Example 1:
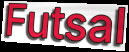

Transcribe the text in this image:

Futsal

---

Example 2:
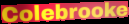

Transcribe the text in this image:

Colebrooke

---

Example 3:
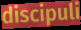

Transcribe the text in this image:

discipuli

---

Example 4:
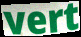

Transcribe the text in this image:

vert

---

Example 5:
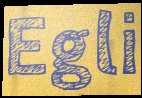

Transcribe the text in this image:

Egli